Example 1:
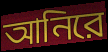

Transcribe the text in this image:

আনিরে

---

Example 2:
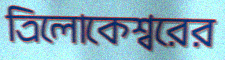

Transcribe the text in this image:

ত্রিলোকেশ্বরের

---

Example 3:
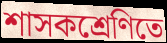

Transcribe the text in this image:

শাসকশ্রেণিতে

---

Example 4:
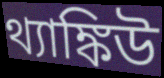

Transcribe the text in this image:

থ্যাঙ্কিউ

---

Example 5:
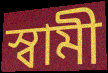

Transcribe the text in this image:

স্বামী